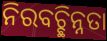
ନିରବଚ୍ଛିନ୍ନତା